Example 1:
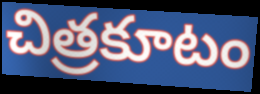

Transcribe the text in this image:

చిత్రకూటం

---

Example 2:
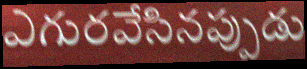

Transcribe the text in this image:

ఎగురవేసినప్పుడు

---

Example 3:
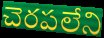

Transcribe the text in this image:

చెరపలేని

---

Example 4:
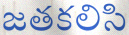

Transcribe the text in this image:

జతకలిసి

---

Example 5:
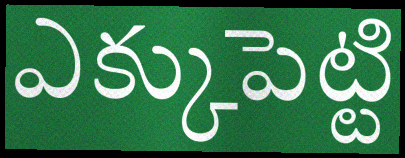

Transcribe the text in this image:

ఎక్కుపెట్టి